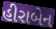
હીરાબેન